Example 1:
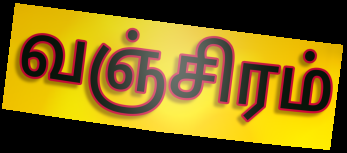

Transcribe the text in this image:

வஞ்சிரம்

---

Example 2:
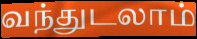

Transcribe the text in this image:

வந்துடலாம்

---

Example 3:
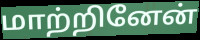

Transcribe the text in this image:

மாற்றினேன்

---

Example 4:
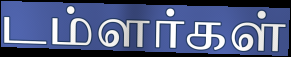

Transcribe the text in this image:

டம்ளர்கள்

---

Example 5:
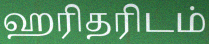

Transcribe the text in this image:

ஹரிதரிடம்